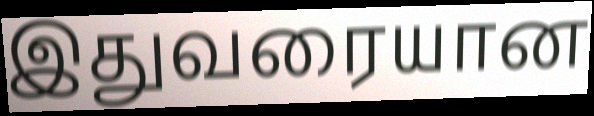
இதுவரையான